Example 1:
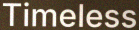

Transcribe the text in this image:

Timeless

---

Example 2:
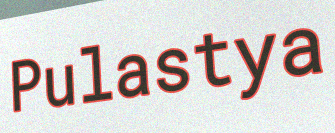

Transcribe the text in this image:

Pulastya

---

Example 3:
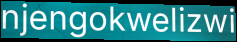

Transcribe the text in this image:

njengokwelizwi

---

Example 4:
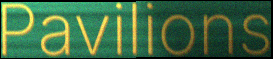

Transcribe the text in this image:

Pavilions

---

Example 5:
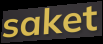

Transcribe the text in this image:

saket